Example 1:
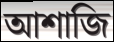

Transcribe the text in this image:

আশাজি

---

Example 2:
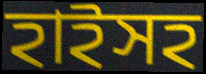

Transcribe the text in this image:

হাইসহ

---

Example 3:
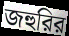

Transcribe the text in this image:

জহুরির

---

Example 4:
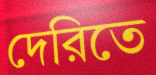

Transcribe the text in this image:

দেরিতে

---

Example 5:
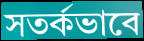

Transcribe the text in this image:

সতর্কভাবে